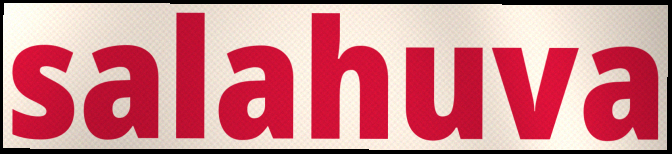
salahuva